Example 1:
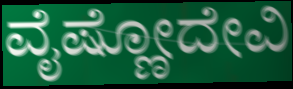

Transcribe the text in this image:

ವೈಷ್ಣೋದೇವಿ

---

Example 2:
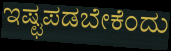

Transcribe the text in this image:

ಇಷ್ಟಪಡಬೇಕೆಂದು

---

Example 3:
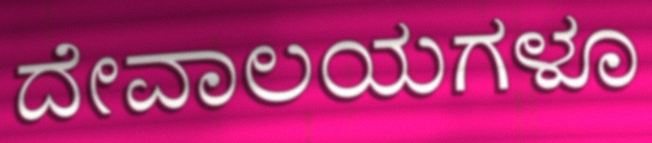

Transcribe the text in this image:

ದೇವಾಲಯಗಳೂ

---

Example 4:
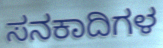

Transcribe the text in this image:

ಸನಕಾದಿಗಳ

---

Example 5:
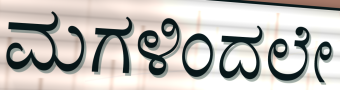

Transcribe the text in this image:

ಮಗಳಿಂದಲೇ